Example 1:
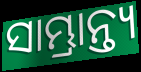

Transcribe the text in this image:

ସାମ୍ଭ୍ରାନ୍ତ୍ୟ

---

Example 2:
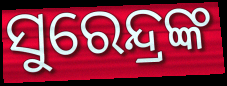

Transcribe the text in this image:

ସୁରେନ୍ଦ୍ରଙ୍କ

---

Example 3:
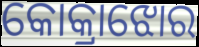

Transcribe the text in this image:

କୋକ୍ରାଝୋର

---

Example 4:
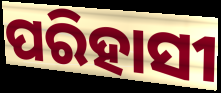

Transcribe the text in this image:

ପରିହାସୀ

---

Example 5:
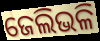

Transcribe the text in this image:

ଜେଲିଭଳି